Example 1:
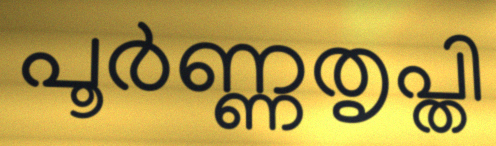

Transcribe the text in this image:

പൂർണ്ണതൃപ്തി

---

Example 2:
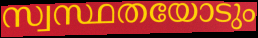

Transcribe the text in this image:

സ്വസ്ഥതയോടും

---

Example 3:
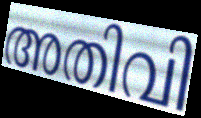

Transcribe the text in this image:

അതിവി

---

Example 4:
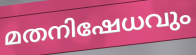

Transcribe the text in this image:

മതനിഷേധവും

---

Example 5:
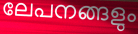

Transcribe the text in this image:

ലേപനങ്ങളും